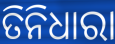
ତିନିଧାରା